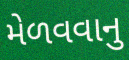
મેળવવાનુ